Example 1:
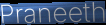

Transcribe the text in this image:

Praneeth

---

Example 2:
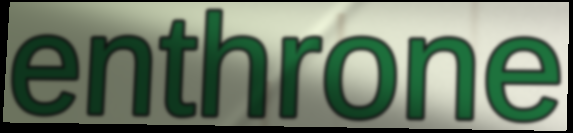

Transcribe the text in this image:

enthrone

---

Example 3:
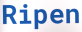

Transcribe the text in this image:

Ripen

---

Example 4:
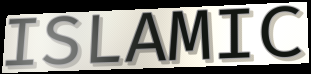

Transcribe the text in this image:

ISLAMIC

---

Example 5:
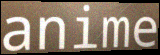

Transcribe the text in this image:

anime